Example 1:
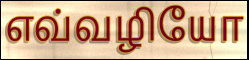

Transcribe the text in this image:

எவ்வழியோ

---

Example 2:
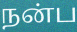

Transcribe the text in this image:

நன்ப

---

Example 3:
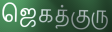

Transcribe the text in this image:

ஜெகத்குரு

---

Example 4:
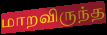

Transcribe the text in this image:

மாறவிருந்த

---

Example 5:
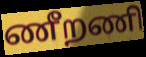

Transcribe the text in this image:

ணீறணி